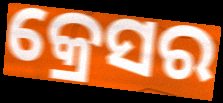
କ୍ରେସର